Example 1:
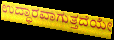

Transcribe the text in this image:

ಉದ್ಧಾರವಾಗುತ್ತದೆಯೇ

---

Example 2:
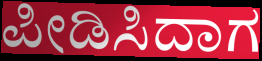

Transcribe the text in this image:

ಪೀಡಿಸಿದಾಗ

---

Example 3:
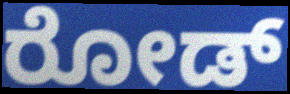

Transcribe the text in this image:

ರೋಡ್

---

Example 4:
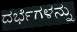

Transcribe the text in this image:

ದರ್ಭೆಗಳನ್ನು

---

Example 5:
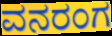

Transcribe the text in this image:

ವನರಂಗ